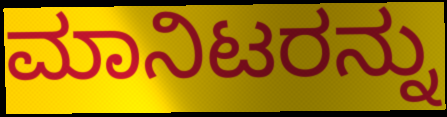
ಮಾನಿಟರನ್ನು